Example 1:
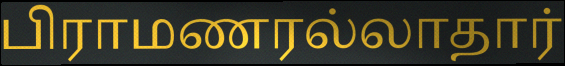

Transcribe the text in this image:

பிராமணரல்லாதார்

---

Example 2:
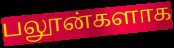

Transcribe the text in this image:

பலூன்களாக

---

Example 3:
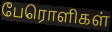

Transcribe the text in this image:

பேரொளிகள்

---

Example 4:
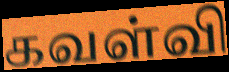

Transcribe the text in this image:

கவள்வி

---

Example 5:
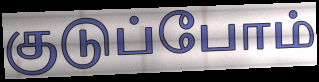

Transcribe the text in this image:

குடுப்போம்